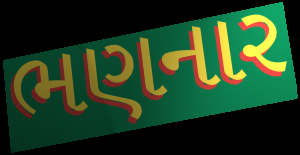
ભણનાર